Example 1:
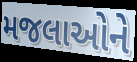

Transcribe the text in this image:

મજલાઓને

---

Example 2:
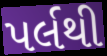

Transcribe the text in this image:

પર્લથી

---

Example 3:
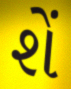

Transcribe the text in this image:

શેં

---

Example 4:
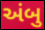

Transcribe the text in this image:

અંબુ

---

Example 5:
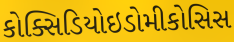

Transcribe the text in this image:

કોક્સિડિયોઇડોમીકોસિસ